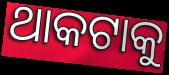
ଥାକଟାକୁ